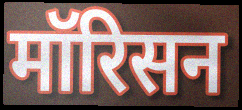
मॉरिसन